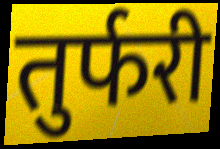
तुर्फरी